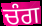
ਚੰਗ